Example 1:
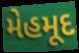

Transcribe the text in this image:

મેહમૂદ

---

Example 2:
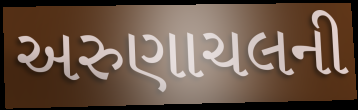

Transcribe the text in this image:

અરુણાચલની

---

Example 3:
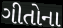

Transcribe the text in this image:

ગીતોના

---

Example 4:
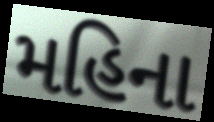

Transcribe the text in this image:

મહિના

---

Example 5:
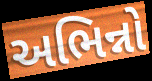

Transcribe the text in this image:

અભિન્નો